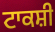
ਟਾਕਸ਼ੀ